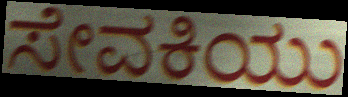
ಸೇವಕಿಯು